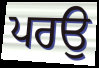
ਪਰਉ